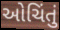
ઓચિંતું